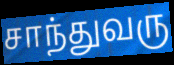
சாந்துவரு